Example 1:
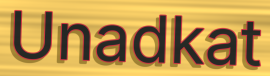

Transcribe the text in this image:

Unadkat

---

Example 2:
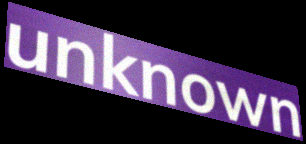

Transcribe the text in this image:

unknown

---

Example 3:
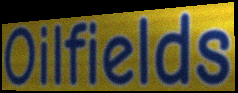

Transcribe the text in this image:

Oilfields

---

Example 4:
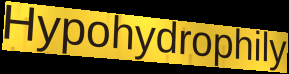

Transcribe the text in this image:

Hypohydrophily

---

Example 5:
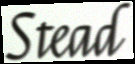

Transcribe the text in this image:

Stead